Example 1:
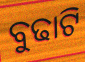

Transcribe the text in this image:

ବୁଢାଟି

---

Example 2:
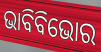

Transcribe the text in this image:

ଭାବିବିଭୋର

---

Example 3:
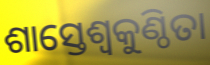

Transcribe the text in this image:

ଶାସ୍ତେଶ୍ବକୁଣ୍ଠିତା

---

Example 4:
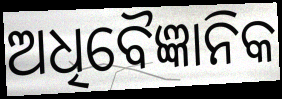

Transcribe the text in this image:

ଅଧିବୈଜ୍ଞାନିକ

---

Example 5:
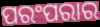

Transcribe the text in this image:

ପରଂପରାର